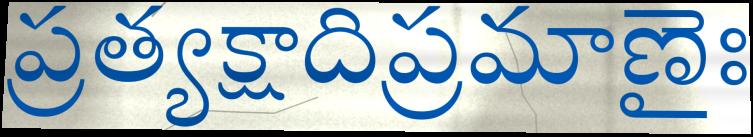
ప్రత్యక్షాదిప్రమాణైః